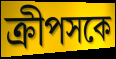
ক্রীপসকে